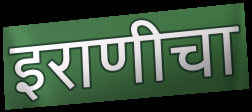
इराणीचा